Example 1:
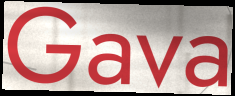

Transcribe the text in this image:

Gava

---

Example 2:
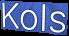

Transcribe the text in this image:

Kols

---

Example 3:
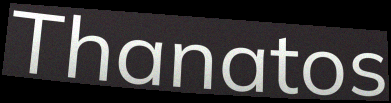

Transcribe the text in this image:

Thanatos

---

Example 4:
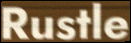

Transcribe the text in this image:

Rustle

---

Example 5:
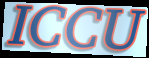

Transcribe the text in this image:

ICCU